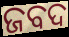
ଜବଦ